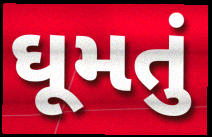
ઘૂમતું